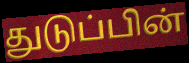
துடுப்பின்